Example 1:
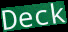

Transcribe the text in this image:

Deck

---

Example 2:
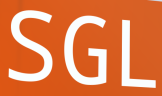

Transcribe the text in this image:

SGL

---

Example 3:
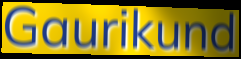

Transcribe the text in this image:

Gaurikund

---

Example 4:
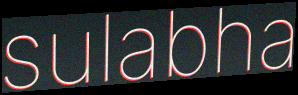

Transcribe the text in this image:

sulabha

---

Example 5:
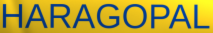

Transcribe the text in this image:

HARAGOPAL